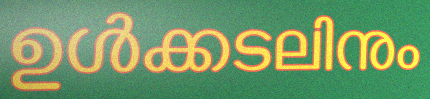
ഉൾക്കടലിനും